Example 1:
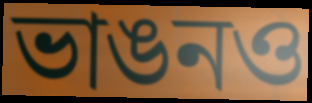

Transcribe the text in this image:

ভাঙনও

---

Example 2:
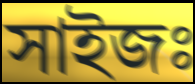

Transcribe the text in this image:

সাইজঃ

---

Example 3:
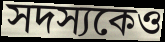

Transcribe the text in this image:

সদস্যকেও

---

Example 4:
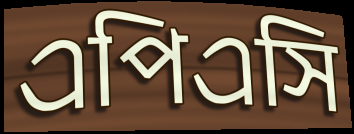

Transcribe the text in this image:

এপিএসি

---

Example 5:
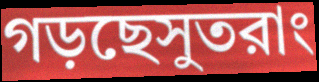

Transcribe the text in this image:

গড়ছেসুতরাং